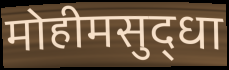
मोहीमसुद्धा